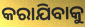
କରାଯିବାକୁ